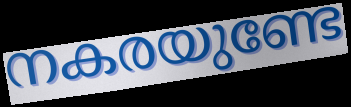
നകരയുണ്ടേ